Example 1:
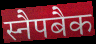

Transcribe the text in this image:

स्नैपबैक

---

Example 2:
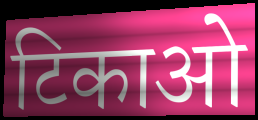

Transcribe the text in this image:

टिकाओ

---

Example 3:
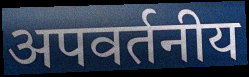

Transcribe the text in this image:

अपवर्तनीय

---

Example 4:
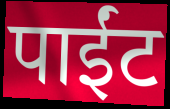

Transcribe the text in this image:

पाईंट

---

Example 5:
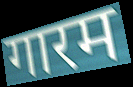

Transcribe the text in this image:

गारम